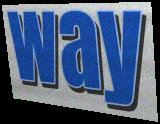
way